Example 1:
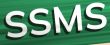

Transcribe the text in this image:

SSMS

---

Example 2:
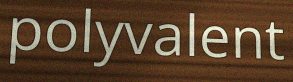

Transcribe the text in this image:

polyvalent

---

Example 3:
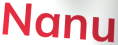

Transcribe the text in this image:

Nanu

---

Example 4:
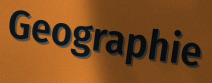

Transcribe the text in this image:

Geographie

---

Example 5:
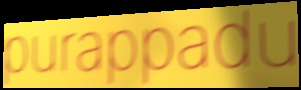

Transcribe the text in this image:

purappadu